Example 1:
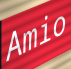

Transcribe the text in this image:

Amio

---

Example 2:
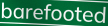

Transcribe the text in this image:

barefooted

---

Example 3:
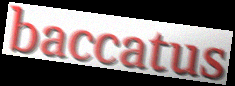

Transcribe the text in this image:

baccatus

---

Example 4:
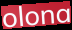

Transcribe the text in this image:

olona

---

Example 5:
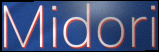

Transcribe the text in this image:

Midori